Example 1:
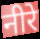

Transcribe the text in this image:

नीरे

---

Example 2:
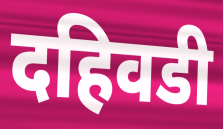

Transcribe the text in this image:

दहिवडी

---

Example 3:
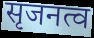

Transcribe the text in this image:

सृजनत्व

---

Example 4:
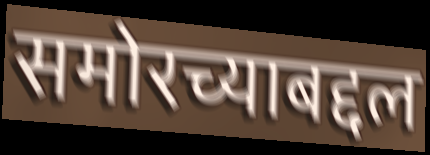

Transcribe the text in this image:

समोरच्याबद्दल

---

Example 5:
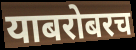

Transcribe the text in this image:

याबरोबरच